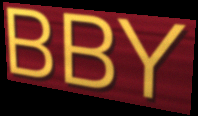
BBY